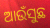
ଆଉଁସୁଛ